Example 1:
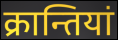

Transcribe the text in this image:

क्रान्तियां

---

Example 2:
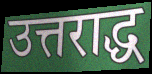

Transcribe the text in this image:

उत्तराद्ध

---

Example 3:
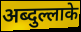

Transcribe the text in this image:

अब्दुल्लाके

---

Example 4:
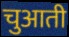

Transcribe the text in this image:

चुआती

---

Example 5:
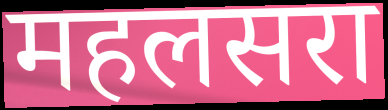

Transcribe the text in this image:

महलसरा